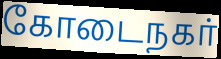
கோடைநகர்